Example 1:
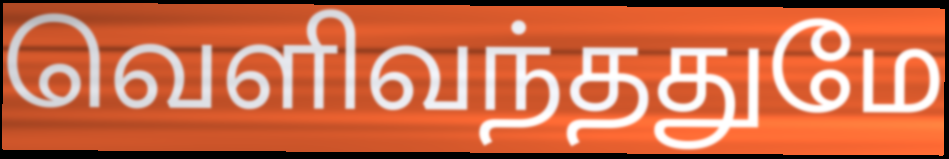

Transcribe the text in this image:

வெளிவந்ததுமே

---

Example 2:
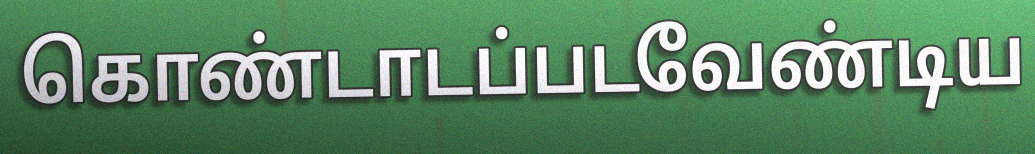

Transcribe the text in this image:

கொண்டாடப்படவேண்டிய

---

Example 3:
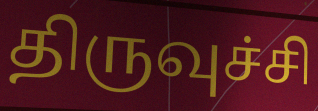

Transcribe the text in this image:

திருவுச்சி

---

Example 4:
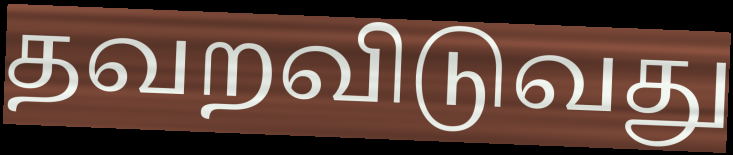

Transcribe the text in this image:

தவறவிடுவது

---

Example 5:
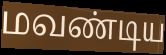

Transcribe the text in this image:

மவண்டிய